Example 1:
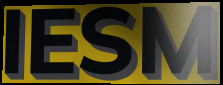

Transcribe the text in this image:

IESM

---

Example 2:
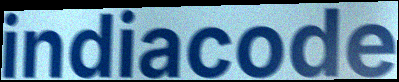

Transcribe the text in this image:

indiacode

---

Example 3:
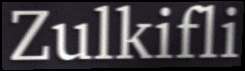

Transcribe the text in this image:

Zulkifli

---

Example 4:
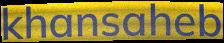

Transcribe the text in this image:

khansaheb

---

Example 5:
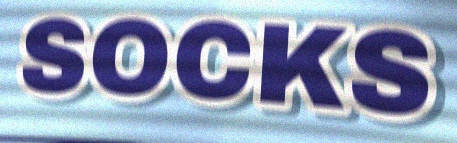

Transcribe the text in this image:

SOCKS